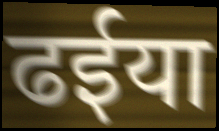
ढईया